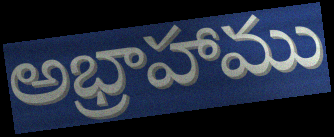
అభ్రాహాము